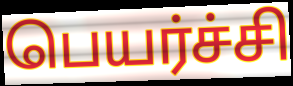
பெயர்ச்சி